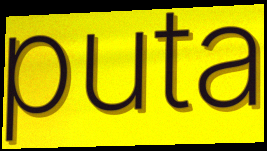
puta